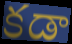
కడా